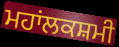
ਮਹਾਂਲਕਸ਼ਮੀ